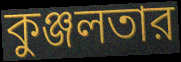
কুঞ্জলতার